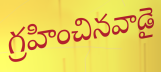
గ్రహించినవాడై